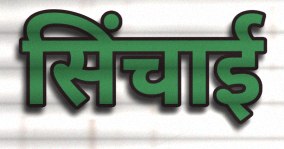
सिंचाई